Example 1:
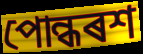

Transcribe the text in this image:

পোন্ধৰশ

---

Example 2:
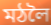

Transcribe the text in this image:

মঠলৈ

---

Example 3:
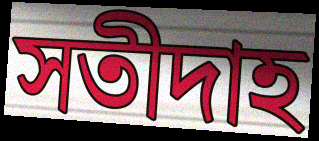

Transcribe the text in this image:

সতীদাহ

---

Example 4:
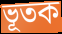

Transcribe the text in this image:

ভূতক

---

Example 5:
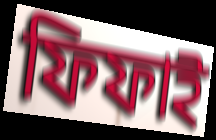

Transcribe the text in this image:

ফিফাই